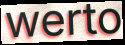
werto